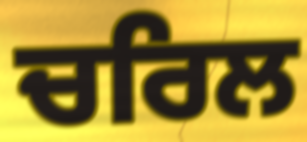
ਚਰਿਲ